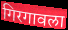
गिरगावला